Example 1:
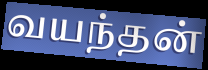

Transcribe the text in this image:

வயந்தன்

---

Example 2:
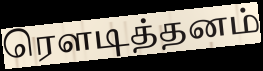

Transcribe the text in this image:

ரௌடித்தனம்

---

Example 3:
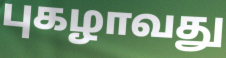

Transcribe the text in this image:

புகழாவது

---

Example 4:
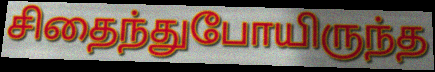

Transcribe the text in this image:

சிதைந்துபோயிருந்த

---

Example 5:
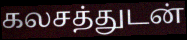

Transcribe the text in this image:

கலசத்துடன்